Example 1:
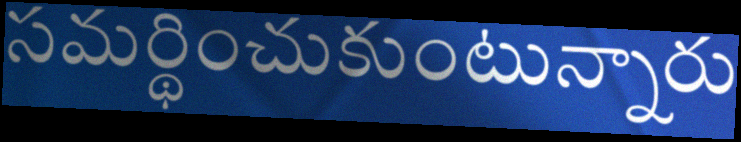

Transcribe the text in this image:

సమర్థించుకుంటున్నారు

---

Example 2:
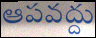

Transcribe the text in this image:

ఆపవద్దు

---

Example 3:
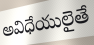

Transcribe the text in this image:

అవిధేయులైతే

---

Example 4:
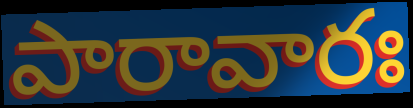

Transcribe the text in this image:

పారావారః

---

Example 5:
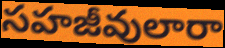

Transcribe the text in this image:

సహజీవులారా